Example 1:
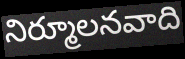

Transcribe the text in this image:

నిర్మూలనవాది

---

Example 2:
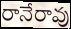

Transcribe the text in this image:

రానేరావు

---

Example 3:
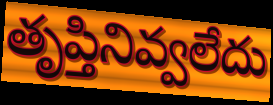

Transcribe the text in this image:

తృప్తినివ్వలేదు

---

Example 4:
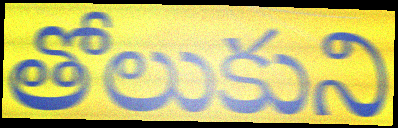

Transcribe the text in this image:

తోలుకుని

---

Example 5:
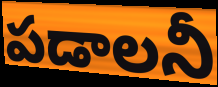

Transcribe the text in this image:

పడాలనీ